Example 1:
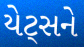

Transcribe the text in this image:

યેટ્સને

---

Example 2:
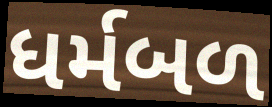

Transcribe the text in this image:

ધર્મબળ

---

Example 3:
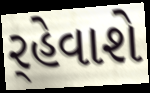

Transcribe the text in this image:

ર્‌હેવાશે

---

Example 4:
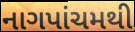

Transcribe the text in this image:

નાગપાંચમથી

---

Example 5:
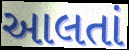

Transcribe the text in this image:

આલતાં